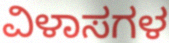
ವಿಳಾಸಗಳ